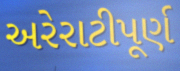
અરેરાટીપૂર્ણ